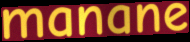
manane